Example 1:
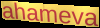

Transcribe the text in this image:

ahameva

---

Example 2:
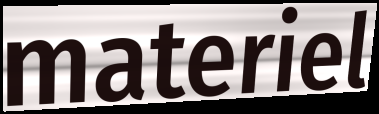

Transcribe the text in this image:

materiel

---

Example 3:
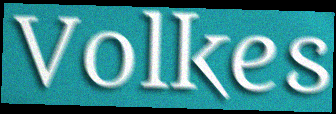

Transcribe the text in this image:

Volkes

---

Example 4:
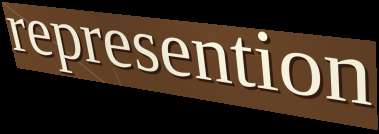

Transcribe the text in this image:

represention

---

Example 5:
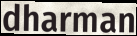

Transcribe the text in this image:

dharman